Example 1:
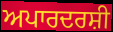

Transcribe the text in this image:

ਅਪਾਰਦਰਸ਼ੀ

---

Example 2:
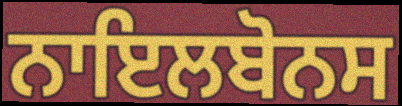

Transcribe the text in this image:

ਨਾਇਲਬੋਨਸ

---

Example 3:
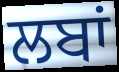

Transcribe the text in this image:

ਲਬਾਂ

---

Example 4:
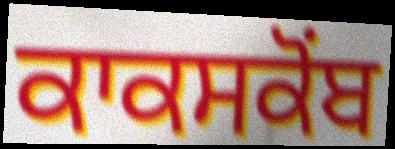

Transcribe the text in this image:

ਕਾਕਸਕੋਂਬ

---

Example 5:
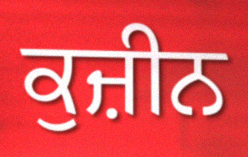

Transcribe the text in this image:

ਕੁਜ਼ੀਨ